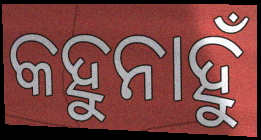
କହୁନାହୁଁ